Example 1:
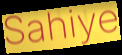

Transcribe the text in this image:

Sahiye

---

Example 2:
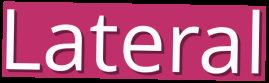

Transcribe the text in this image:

Lateral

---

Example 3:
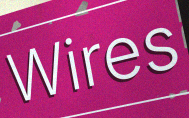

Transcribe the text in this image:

Wires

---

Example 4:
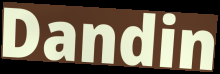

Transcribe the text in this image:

Dandin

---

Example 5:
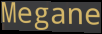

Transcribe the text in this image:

Megane